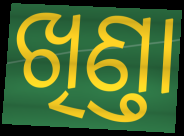
ଖିଣ୍ତା